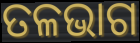
ତଳଭାଗ